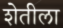
शेतीला